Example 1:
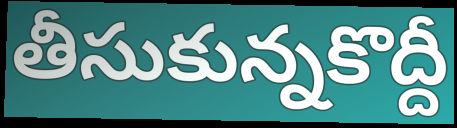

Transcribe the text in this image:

తీసుకున్నకొద్దీ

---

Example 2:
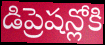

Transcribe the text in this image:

డిప్రెషన్లోకి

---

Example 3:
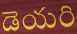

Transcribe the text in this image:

డెయరి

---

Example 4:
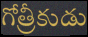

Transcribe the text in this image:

గోత్రీకుడు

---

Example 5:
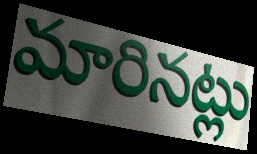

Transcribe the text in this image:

మారినట్లు